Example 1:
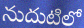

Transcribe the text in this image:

నుదుటిలో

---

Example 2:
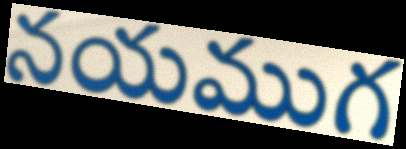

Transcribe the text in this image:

నయముగ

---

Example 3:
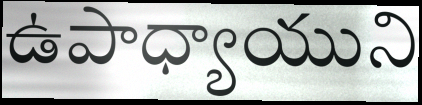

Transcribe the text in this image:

ఉపాధ్యాయుని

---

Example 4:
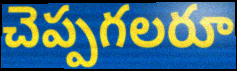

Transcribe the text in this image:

చెప్పగలరూ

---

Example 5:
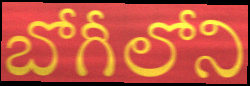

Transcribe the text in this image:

బోగీలోని